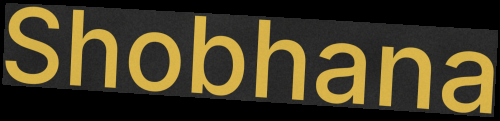
Shobhana